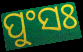
ପୁଂସଃ